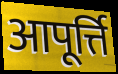
आपूर्त्ति